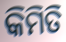
କିମିତି